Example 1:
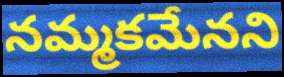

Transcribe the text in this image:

నమ్మకమేనని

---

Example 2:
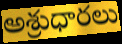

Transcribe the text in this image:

అశ్రుధారలు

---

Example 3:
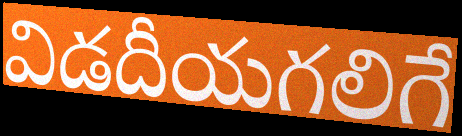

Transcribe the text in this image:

విడదీయగలిగే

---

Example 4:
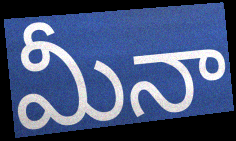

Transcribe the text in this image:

మీనా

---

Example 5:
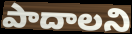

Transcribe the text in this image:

పాదాలని